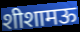
शीशामऊ